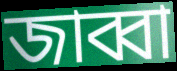
জাব্বা